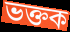
ভক্তক